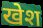
खेश